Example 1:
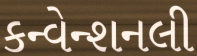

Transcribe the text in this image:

કન્વેન્શનલી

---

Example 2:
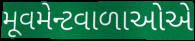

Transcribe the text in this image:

મૂવમેન્ટવાળાઓએ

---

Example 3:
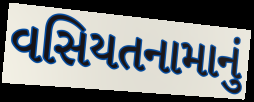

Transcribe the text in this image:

વસિયતનામાનું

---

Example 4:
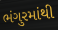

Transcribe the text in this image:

ભંગુરમાંથી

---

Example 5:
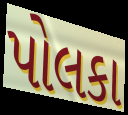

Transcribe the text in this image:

પોલકા